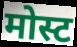
मोस्ट